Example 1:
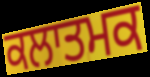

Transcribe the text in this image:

ਕਲਾਤਮਕ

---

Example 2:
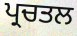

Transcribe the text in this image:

ਪ੍ਰਚਤਲ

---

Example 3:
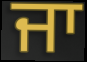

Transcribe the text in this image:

ਜਾ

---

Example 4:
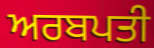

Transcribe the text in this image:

ਅਰਬਪਤੀ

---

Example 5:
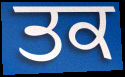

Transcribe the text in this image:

ਤਕ